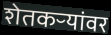
शेतकऱ्यांवर